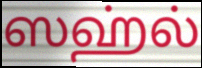
ஸஹ்ல்